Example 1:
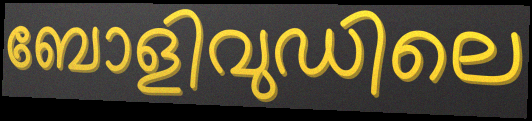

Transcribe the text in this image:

ബോളിവുഡിലെ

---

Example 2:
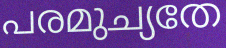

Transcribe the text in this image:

പരമുച്യതേ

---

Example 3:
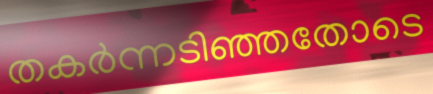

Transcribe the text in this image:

തകർന്നടിഞ്ഞതോടെ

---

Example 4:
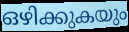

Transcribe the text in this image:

ഒഴിക്കുകയും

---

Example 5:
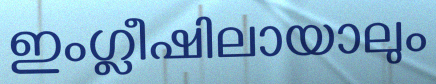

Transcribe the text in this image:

ഇംഗ്ലീഷിലായാലും